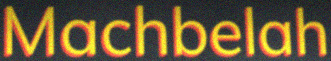
Machbelah